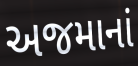
અજમાનાં